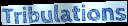
Tribulations